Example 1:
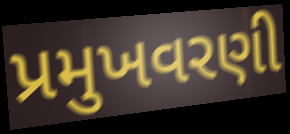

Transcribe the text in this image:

પ્રમુખવરણી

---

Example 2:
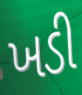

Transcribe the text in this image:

ખડી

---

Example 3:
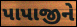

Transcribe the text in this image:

પાપાજીને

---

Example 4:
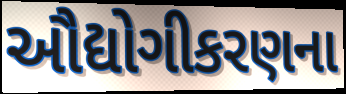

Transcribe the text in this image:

ઔદ્યોગીકરણના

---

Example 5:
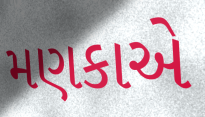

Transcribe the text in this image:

મણકાએ